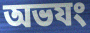
অভযং